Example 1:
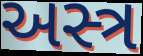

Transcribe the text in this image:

અસ્ત્ર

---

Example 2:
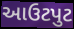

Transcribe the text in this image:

આઉટપુટ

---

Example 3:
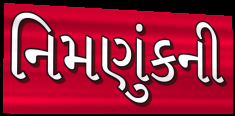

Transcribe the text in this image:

નિમણુંકની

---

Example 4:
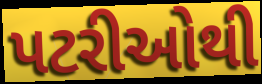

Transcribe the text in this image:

પટરીઓથી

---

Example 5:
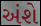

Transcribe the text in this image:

અંશે